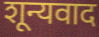
शून्यवाद